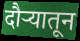
दौर्‍यातून